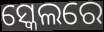
ସ୍କେଲରେ